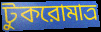
টুকরোমাত্র